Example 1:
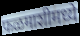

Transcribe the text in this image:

फळमाशीमध्ये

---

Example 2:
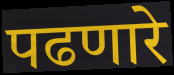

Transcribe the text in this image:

पढणारे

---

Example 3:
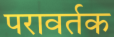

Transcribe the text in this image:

परावर्तक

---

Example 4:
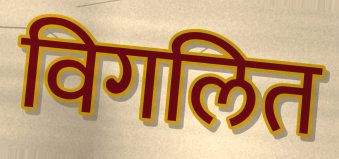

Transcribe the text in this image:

विगलित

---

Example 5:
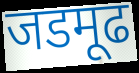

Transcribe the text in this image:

जडमूढ